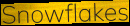
Snowflakes